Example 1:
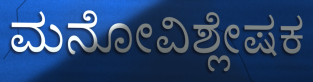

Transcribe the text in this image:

ಮನೋವಿಶ್ಲೇಷಕ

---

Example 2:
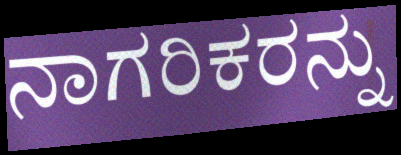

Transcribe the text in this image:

ನಾಗರಿಕರನ್ನು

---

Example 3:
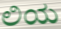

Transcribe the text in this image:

ಲಿಯ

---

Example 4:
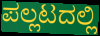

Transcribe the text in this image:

ಪಲ್ಲಟದಲ್ಲಿ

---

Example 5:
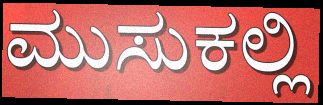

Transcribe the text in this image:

ಮುಸುಕಲ್ಲಿ